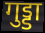
गुड्डा